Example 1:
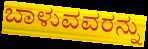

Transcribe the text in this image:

ಬಾಳುವವರನ್ನು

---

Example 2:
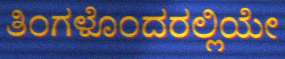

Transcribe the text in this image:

ತಿಂಗಳೊಂದರಲ್ಲಿಯೇ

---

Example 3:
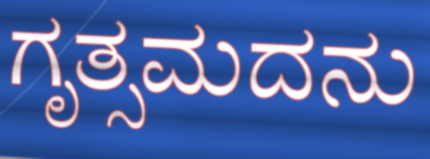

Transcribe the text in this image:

ಗೃತ್ಸಮದನು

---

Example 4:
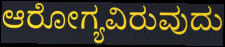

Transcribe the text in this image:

ಆರೋಗ್ಯವಿರುವುದು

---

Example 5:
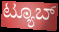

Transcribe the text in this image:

ಟ್ಯೂಬ್